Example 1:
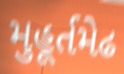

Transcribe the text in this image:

મુહૂર્તમેઢ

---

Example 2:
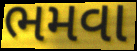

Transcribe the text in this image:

ભમવા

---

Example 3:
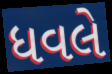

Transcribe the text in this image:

ધવલે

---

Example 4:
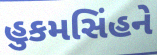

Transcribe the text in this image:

હુકમસિંહને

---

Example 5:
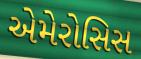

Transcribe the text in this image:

એમેરોસિસ